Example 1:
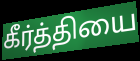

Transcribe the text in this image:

கீர்த்தியை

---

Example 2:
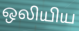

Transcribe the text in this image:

ஒலியிய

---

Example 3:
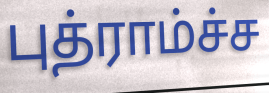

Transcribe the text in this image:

புத்ராம்ச்ச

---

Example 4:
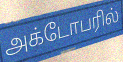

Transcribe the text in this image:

அக்டோபரில்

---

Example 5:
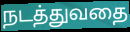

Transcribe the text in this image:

நடத்துவதை